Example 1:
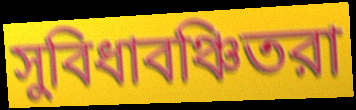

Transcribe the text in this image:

সুবিধাবঞ্চিতরা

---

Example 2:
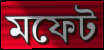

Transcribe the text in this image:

মফেট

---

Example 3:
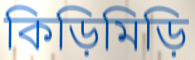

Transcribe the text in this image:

কিড়িমিড়ি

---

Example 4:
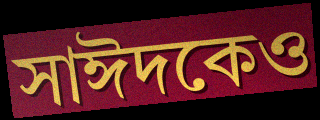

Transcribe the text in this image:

সাঈদকেও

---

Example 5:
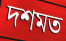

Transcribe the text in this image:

দশমত